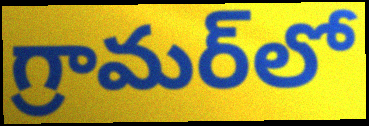
గ్రామర్‌లో